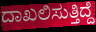
ದಾಖಲಿಸುತ್ತಿದ್ದೆ